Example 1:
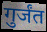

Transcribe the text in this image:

गुर्जंत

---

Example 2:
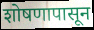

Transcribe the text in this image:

शोषणापासून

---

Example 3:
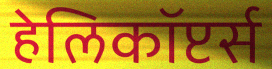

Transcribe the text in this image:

हेलिकॉप्टर्स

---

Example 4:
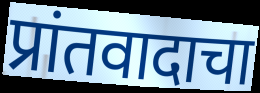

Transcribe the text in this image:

प्रांतवादाचा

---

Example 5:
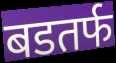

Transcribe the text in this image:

बडतर्फ